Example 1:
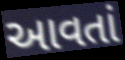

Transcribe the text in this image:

આવતાં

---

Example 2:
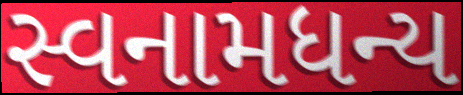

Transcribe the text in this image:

સ્વનામધન્ય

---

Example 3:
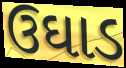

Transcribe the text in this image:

ઉઘાડ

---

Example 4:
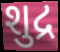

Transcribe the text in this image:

શુદ્ર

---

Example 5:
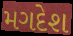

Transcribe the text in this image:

મગદેશ